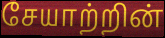
சேயாற்றின்